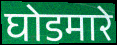
घोडमारे